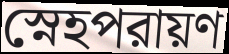
স্নেহপরায়ণ